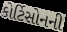
કોર્ટિસોનની